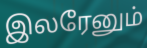
இலரேனும்